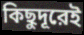
কিছুদূরেই